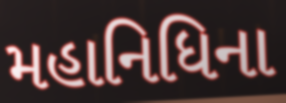
મહાનિધિના